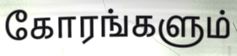
கோரங்களும்